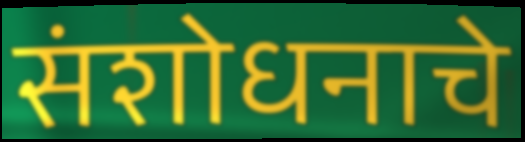
संशोधनाचे